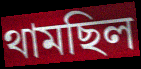
থামছিল